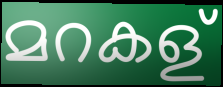
മറകള്